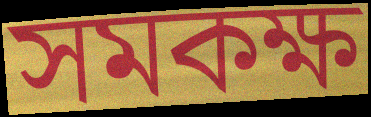
সমকক্ষ